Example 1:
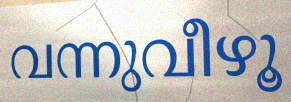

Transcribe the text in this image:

വന്നുവീഴൂ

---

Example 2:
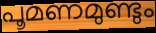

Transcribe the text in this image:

പൂമണമുണ്ടും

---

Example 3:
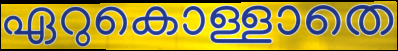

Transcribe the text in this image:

ഏറുകൊള്ളാതെ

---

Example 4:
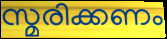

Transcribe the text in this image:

സ്മരിക്കണം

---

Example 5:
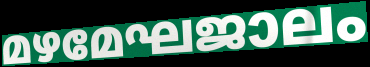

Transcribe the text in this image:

മഴമേഘജാലം